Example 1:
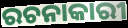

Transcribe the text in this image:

ରଚନାକାରୀ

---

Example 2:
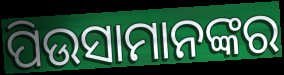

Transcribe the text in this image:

ପିଉସାମାନଙ୍କର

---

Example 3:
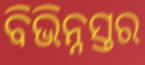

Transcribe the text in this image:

ବିଭିନ୍ନସ୍ତର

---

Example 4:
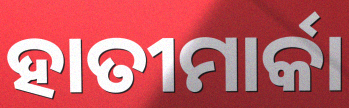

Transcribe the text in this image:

ହାତୀମାର୍କା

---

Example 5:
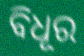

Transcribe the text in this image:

ବିଧୂର